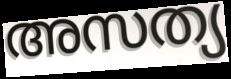
അസത്യ